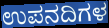
ಉಪನದಿಗಳ